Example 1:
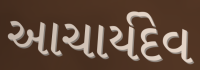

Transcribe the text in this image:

આચાર્યદેવ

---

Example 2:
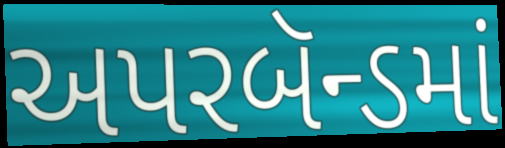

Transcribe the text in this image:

અપરબૅન્ડમાં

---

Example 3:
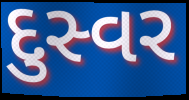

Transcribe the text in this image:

દુસ્વર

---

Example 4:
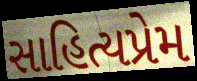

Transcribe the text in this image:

સાહિત્યપ્રેમ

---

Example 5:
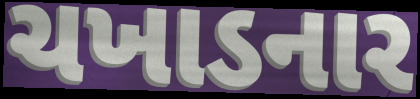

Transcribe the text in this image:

ચખાડનાર